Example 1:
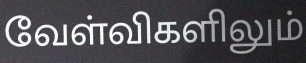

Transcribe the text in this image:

வேள்விகளிலும்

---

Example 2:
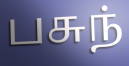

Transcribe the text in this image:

பசுந்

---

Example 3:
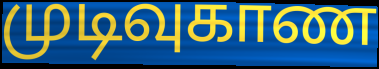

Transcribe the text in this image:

முடிவுகாண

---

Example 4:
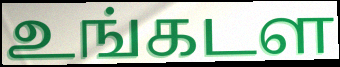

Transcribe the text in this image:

உங்கடள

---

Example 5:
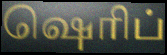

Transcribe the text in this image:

ஷெரிப்